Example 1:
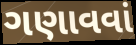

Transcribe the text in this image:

ગણાવવાં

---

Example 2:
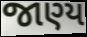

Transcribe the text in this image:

જાણ્ય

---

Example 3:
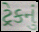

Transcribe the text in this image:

ટ્રેકનું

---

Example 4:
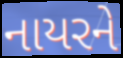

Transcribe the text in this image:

નાયરને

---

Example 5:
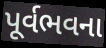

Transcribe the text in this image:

પૂર્વભવના